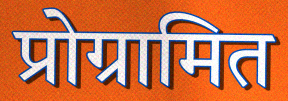
प्रोग्रामित